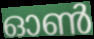
ഓൺ